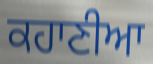
ਕਹਾਣੀਆ